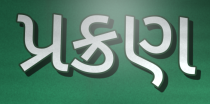
પ્રક્રણ